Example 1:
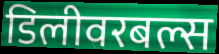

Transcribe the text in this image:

डिलीवरबल्स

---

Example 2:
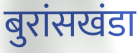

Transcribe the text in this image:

बुरांसखंडा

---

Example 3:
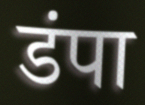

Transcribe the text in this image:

डंपा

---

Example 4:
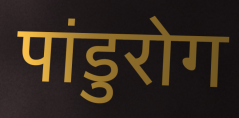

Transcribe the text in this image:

पांडुरोग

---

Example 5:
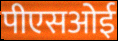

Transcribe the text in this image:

पीएसओई